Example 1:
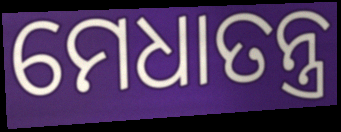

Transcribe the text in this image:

ମେଧାତନ୍ତ୍ର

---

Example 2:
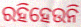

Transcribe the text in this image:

ରହିହେଉନି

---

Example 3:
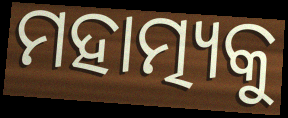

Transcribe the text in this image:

ମହାତ୍ମ୍ୟକୁ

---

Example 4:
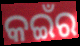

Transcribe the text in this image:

କଇଁର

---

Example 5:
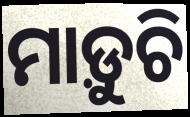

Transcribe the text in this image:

ମାଡ଼ୁଚି